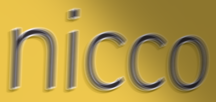
nicco